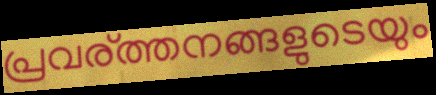
പ്രവര്ത്തനങ്ങളുടെയും